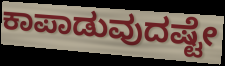
ಕಾಪಾಡುವುದಷ್ಟೇ